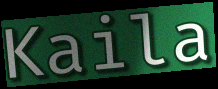
Kaila